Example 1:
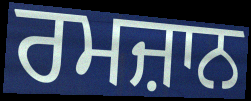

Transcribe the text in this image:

ਰਮਜ਼ਾਨ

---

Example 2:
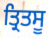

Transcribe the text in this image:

ਤ੍ਰਿਤਸੂ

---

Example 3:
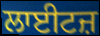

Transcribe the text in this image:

ਲਾਈਟਜ਼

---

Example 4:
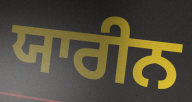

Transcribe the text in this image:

ਯਾਰੀਨ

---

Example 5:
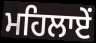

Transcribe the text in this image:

ਮਹਿਲਾਏਂ